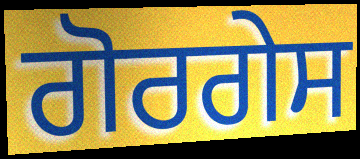
ਗੋਰਗੇਸ